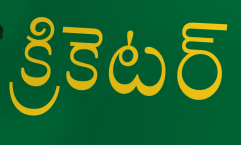
క్రికెటర్